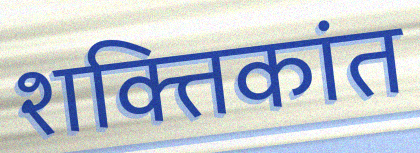
शक्तिकांत